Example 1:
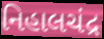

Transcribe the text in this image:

નિહાલચંદ્ર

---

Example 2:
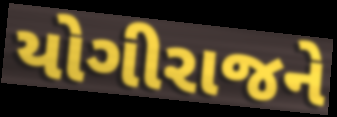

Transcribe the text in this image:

યોગીરાજને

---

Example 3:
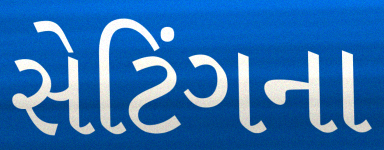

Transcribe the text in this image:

સેટિંગના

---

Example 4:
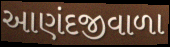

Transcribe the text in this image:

આણંદજીવાળા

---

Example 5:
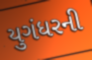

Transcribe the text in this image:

યુગંધરની